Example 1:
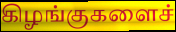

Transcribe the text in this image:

கிழங்குகளைச்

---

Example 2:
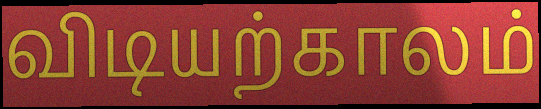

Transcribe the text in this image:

விடியற்காலம்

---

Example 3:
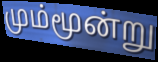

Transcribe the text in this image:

மும்மூன்று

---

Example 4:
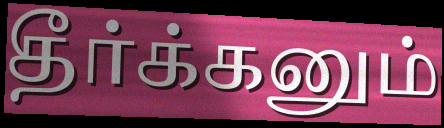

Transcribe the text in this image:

தீர்க்கனும்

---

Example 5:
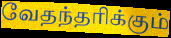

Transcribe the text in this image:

வேதந்தரிக்கும்